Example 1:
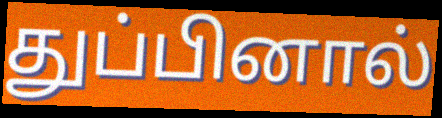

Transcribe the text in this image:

துப்பினால்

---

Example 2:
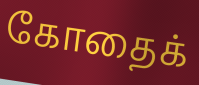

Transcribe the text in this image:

கோதைக்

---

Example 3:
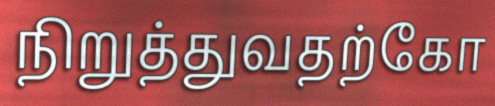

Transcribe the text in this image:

நிறுத்துவதற்கோ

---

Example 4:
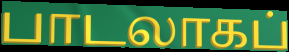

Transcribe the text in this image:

பாடலாகப்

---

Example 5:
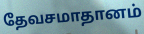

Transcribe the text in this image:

தேவசமாதானம்